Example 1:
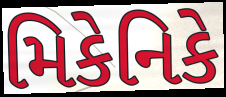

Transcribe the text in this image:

મિકેનિકે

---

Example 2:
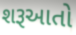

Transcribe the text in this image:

શરૂઆતો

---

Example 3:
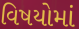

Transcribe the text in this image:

વિષયોમાં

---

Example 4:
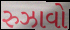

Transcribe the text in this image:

રુઝાવો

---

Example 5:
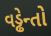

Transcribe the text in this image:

વડ્ઢેન્તો